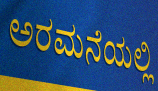
ಅರಮನೆಯಲ್ಲಿ